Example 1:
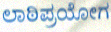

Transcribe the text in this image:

ಲಾಠಿಪ್ರಯೋಗ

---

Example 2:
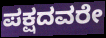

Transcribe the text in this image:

ಪಕ್ಷದವರೇ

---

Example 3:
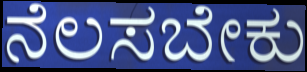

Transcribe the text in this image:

ನೆಲಸಬೇಕು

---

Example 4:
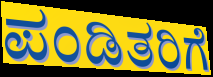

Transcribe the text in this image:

ಪಂಡಿತರಿಗೆ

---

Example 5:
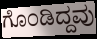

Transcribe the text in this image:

ಗೊಂಡಿದ್ದವು